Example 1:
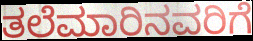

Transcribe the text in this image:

ತಲೆಮಾರಿನವರಿಗೆ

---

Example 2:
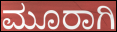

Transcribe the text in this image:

ಮೂರಾಗಿ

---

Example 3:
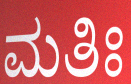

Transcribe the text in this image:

ಮತಿಃ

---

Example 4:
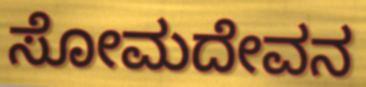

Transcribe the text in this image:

ಸೋಮದೇವನ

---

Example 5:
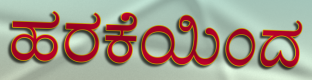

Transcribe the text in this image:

ಹರಕೆಯಿಂದ